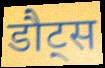
डौट्स